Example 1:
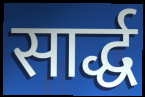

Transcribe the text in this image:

सार्द्ध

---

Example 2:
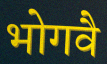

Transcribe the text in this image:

भोगवै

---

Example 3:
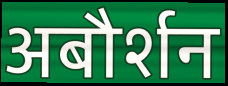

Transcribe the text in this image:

अबौर्शन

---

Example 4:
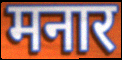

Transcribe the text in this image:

मनार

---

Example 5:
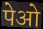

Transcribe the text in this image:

पेओ